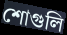
শোগুলি